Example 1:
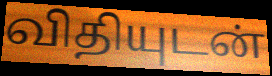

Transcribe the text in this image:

விதியுடன்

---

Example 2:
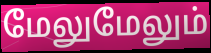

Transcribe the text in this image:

மேலுமேலும்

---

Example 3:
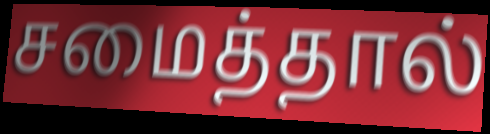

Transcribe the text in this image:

சமைத்தால்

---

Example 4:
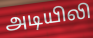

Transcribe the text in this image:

அடியிலி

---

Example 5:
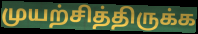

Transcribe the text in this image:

முயற்சித்திருக்க